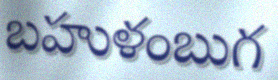
బహుళంబుగ